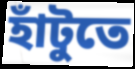
হাঁটুতে